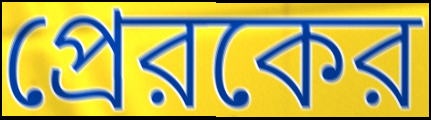
প্রেরকের